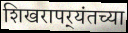
शिखरापर्यंतच्या